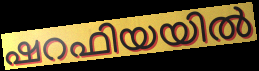
ഷറഫിയയിൽ